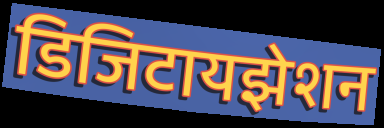
डिजिटायझेशन